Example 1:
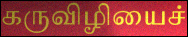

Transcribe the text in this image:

கருவிழியைச்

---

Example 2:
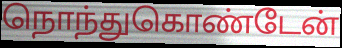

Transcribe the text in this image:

நொந்துகொண்டேன்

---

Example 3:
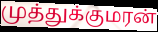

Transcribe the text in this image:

முத்துக்குமரன்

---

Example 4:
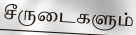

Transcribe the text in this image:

சீருடைகளும்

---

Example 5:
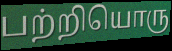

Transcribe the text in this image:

பற்றியொரு